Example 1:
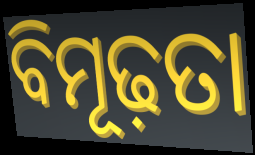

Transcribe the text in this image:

ବିମୂଢ଼ତା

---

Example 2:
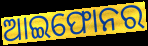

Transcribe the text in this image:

ଆଇଫୋନର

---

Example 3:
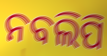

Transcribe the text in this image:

ନବଲିପି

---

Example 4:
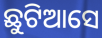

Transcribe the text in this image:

ଛୁଟିଆସେ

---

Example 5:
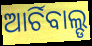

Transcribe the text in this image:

ଆର୍ଚିବାଲ୍ଡ